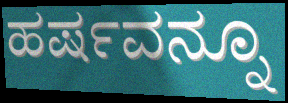
ಹರ್ಷವನ್ನೂ